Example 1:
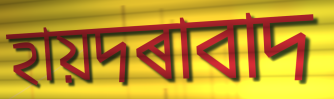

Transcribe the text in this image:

হায়দৰাবাদ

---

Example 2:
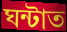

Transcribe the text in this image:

ঘন্টাত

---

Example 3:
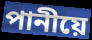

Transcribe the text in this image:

পানীয়ে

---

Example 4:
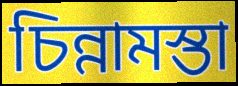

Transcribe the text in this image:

চিন্নামস্তা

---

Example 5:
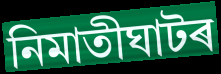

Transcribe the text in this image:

নিমাতীঘাটৰ